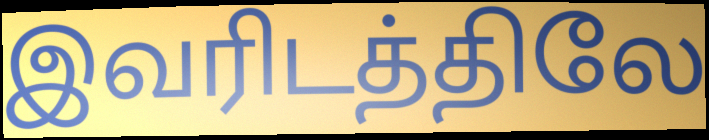
இவரிடத்திலே